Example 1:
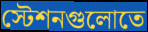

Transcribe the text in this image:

স্টেশনগুলোতে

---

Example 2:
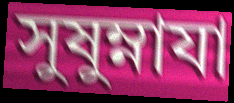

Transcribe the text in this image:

সুষুম্নাযা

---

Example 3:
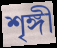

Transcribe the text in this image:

শৃঙ্গী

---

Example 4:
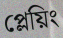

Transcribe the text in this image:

প্লেয়িং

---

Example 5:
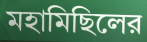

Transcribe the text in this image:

মহামিছিলের